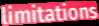
limitations